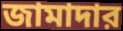
জামাদার